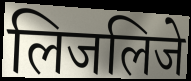
लिजलिजे